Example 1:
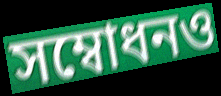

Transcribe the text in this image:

সম্বোধনও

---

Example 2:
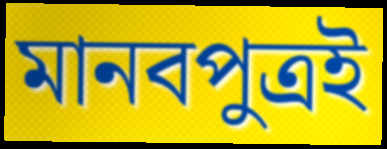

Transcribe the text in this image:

মানবপুত্রই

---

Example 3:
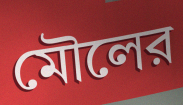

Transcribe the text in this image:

মৌলের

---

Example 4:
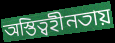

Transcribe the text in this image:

অস্তিত্বহীনতায়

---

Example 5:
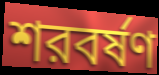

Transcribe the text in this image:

শরবর্ষণ